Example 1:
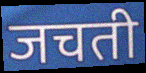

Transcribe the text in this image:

जचती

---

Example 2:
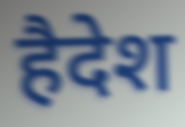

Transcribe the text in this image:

हैदेश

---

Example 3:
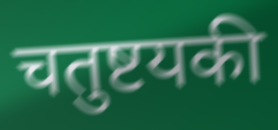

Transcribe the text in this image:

चतुष्टयकी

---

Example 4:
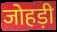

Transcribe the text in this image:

जोहड़ी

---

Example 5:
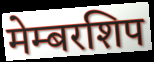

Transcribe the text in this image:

मेम्बरशिप